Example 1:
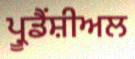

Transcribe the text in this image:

ਪ੍ਰੂਡੈਂਸ਼ੀਅਲ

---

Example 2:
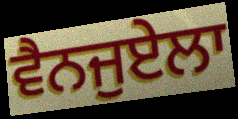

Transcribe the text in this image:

ਵੈਨਜੁਏਲਾ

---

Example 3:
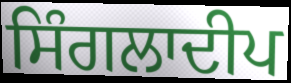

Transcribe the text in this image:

ਸਿੰਗਲਾਦੀਪ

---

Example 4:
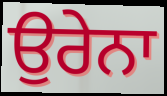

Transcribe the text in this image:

ਉਰੇਨਾ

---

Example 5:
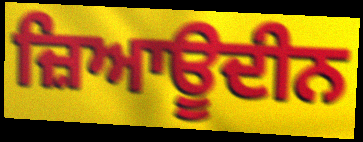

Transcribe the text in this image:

ਜ਼ਿਆਊਦੀਨ